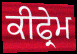
ਕੀਫ੍ਰੇਮ